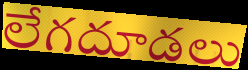
లేగదూడలు